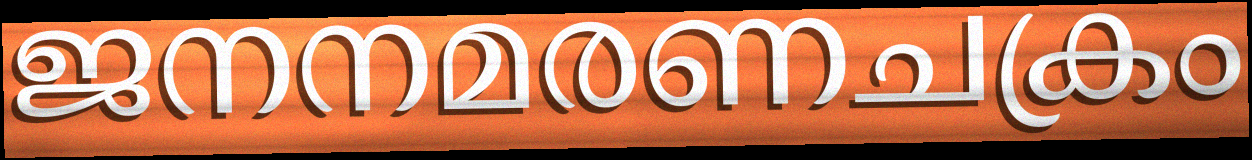
ജനനമരണചക്രം